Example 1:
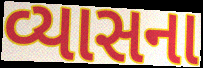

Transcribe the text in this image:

વ્યાસના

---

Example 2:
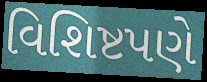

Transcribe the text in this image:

વિશિષ્ટપણે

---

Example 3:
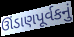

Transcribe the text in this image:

ઊંડાણપૂર્વકનું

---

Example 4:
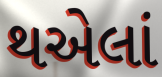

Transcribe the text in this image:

થએલાં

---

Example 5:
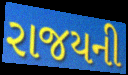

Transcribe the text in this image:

રાજયની